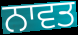
ਨਾਵਤ